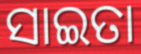
ସାଇତା